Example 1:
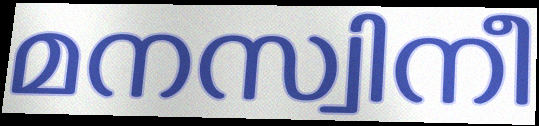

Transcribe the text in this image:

മനസ്വിനീ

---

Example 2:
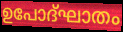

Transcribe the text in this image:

ഉപോദ്ഘാതം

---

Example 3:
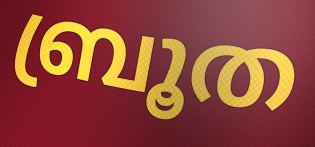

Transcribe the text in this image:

ബ്രൂത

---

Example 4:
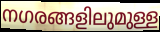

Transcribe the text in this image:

നഗരങ്ങളിലുമുള്ള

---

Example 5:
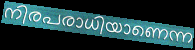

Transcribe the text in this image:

നിരപരാധിയാണെന്ന